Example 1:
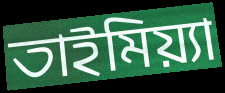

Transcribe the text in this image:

তাইমিয়্যা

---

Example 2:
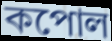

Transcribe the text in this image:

কপোল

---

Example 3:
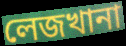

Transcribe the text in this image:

লেজখানা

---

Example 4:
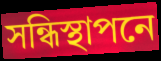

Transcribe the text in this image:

সন্ধিস্থাপনে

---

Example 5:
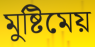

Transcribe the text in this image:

মুষ্টিমেয়